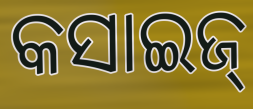
କସାଇଜ୍